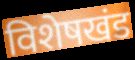
विशेषखंड